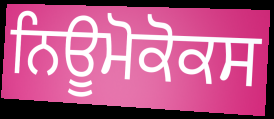
ਨਿਊਮੋਕੋਕਸ